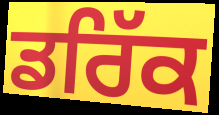
ਡਰਿੱਕ